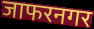
जाफरनगर